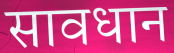
सावधान